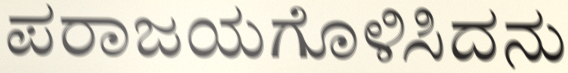
ಪರಾಜಯಗೊಳಿಸಿದನು